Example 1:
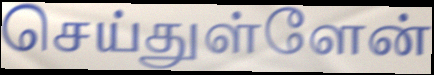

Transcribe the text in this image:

செய்துள்ளேன்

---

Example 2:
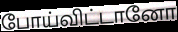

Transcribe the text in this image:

போய்விட்டானோ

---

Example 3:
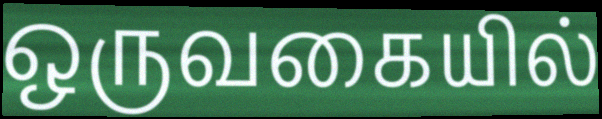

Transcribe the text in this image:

ஒருவகையில்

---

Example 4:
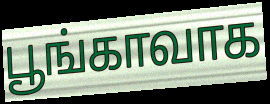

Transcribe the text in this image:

பூங்காவாக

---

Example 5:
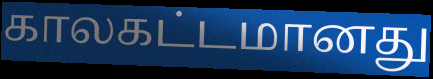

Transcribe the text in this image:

காலகட்டமானது